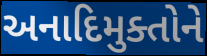
અનાદિમુક્તોને